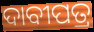
ଦାବୀପତ୍ର